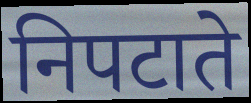
निपटाते